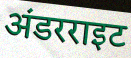
अंडरराइट